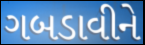
ગબડાવીને